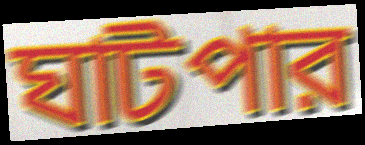
ঘাটপার